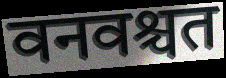
वनवश्चत